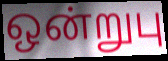
ஒன்றுபு